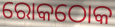
ରୋକଠୋକ